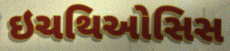
ઇચથિઓસિસ